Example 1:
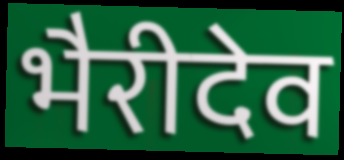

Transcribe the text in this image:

भैरीदेव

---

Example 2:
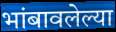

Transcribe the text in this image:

भांबावलेल्या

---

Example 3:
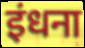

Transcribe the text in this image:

इंधना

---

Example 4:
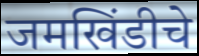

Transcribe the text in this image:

जमखिंडीचे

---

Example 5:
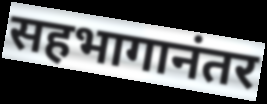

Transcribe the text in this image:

सहभागानंतर